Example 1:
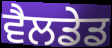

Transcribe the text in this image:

ਵੈਲਡੇਡ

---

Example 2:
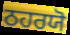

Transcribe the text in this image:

ਠਹਰਯੋ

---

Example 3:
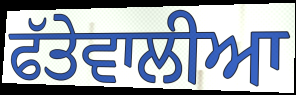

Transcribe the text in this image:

ਫੱਤੇਵਾਲੀਆ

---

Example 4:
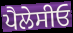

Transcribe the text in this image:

ਪੈਲੇਸੀਓ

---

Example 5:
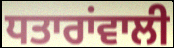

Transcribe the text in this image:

ਧਤਾਰਾਂਵਾਲੀ